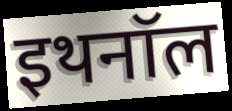
इथनॉल